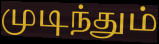
முடிந்தும்